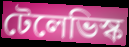
টেলেভিস্ক